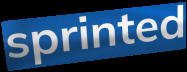
sprinted